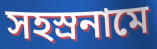
সহস্ৰনামে